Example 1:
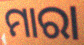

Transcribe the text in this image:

ମାରା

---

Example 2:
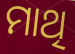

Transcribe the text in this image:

ମାଥି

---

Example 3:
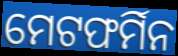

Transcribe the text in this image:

ମେଟଫର୍ମିନ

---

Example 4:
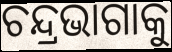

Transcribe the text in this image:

ଚନ୍ଦ୍ରଭାଗାକୁ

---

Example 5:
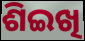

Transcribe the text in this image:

ଶିଇଖି